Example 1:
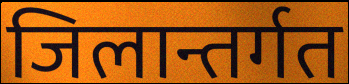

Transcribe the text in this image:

जिलान्तर्गत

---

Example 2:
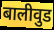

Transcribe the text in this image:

बालीवुड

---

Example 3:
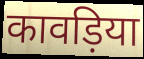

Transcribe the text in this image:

कावड़िया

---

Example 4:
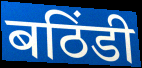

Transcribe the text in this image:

बठिंडी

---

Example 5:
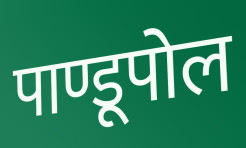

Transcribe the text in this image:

पाण्डूपोल